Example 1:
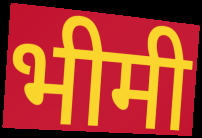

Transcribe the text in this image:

भीमी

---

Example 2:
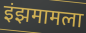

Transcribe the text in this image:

इंझमामला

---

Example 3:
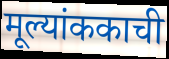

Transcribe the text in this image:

मूल्यांककाची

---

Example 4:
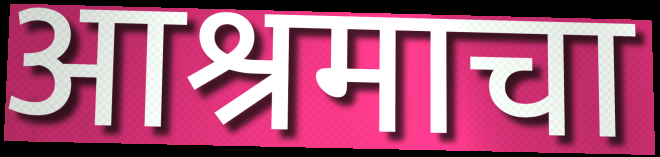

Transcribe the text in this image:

आश्रमाचा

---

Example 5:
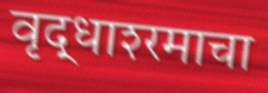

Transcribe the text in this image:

वृद्धाश्रमाचा